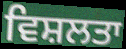
ਵਿਸ਼ਲਤਾ